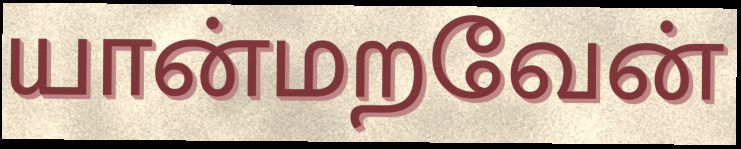
யான்மறவேன்